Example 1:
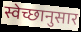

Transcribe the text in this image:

स्वेच्छानुसार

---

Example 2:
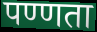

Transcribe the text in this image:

पण्णता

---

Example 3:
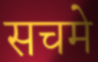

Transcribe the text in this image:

सचमे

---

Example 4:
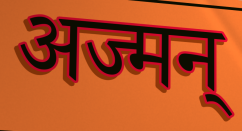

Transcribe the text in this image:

अज्मन्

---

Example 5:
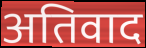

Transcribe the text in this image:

अतिवाद